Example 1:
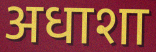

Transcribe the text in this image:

अधाशा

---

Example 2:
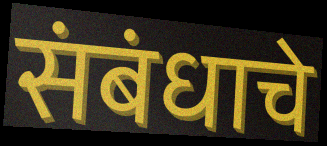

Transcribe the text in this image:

संबंधाचे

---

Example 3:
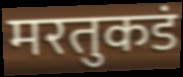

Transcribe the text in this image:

मरतुकडं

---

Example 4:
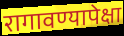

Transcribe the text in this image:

रागावण्यापेक्षा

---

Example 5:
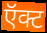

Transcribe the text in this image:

ऍक्ट